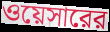
ওয়েসারের